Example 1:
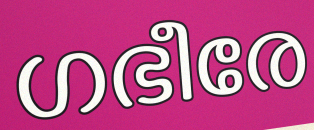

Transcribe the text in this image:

ഗഭീരേ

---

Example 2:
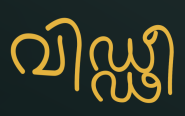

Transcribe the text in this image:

വിഡ്ഢീ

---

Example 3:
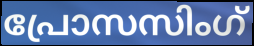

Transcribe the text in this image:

പ്രോസസിംഗ്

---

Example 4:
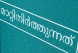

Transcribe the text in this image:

മാറ്റിനിർത്തുന്നത്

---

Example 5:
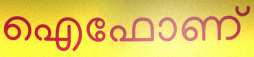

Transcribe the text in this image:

ഐഫോണ്